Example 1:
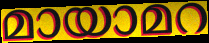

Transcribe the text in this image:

മായാമറ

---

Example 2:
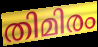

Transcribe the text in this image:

തിമിരം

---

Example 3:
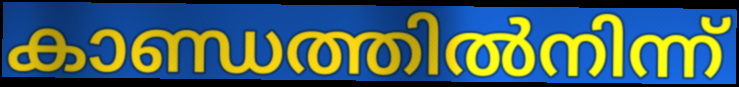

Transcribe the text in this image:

കാണ്ഡത്തിൽനിന്ന്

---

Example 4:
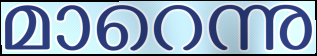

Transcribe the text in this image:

മാറെന്നു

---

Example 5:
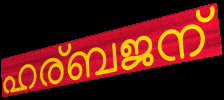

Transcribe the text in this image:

ഹര്ബജന്